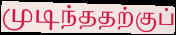
முடிந்ததற்குப்